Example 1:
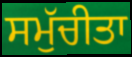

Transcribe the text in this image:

ਸਮੁੱਚੀਤਾ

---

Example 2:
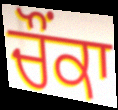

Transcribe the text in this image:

ਚੌਂਕਾ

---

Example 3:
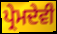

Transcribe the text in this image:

ਪ੍ਰੇਮਦੇਵੀ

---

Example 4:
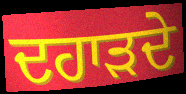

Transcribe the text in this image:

ਦਹਾੜਦੇ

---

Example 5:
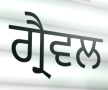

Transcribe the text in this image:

ਗ੍ਰੈਵਲ